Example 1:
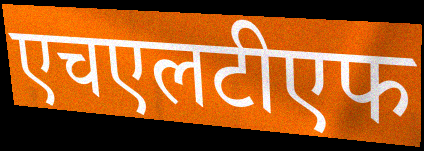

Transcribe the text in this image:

एचएलटीएफ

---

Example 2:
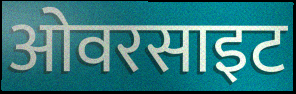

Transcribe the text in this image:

ओवरसाइट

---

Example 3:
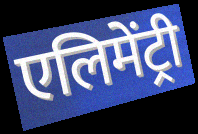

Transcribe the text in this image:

एलिमेंट्री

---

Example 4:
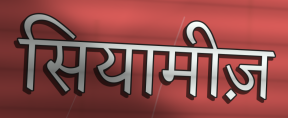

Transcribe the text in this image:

सियामीज़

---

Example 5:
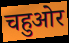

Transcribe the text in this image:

चहुओर